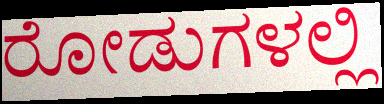
ರೋಡುಗಳಲ್ಲಿ